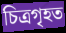
চিত্ৰগৃহত